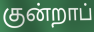
குன்றாப்